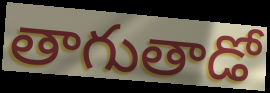
తాగుతాడో